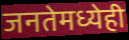
जनतेमध्येही